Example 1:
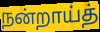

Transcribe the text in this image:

நன்றாய்த்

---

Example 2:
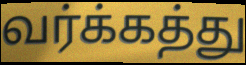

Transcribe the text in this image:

வர்க்கத்து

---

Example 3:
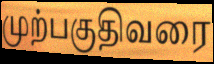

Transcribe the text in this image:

முற்பகுதிவரை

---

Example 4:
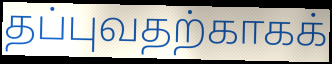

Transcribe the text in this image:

தப்புவதற்காகக்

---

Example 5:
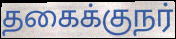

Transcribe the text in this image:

தகைக்குநர்